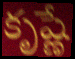
కృష్ణే